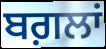
ਬਗ਼ਲਾਂ